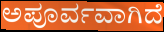
ಅಪೂರ್ವವಾಗಿದೆ